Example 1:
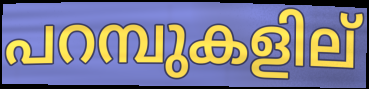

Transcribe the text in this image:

പറമ്പുകളില്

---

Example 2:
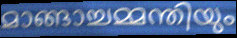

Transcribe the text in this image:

മാങ്ങാച്ചമ്മന്തിയും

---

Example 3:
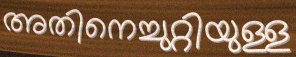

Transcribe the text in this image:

അതിനെച്ചുറ്റിയുള്ള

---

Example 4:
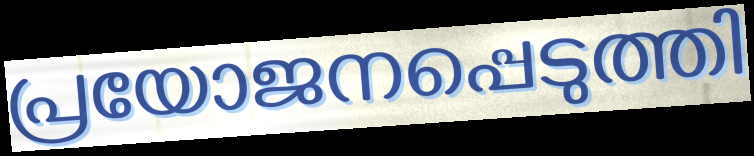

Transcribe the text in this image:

പ്രയോജനപ്പെടുത്തി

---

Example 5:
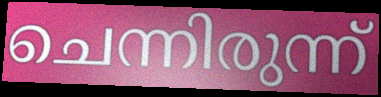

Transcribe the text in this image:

ചെന്നിരുന്ന്